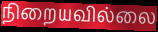
நிறையவில்லை